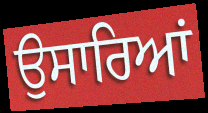
ਉਸਾਰਿਆਂ